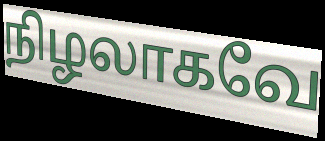
நிழலாகவே